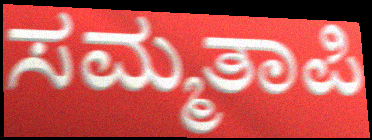
ಸಮ್ಮತಾಪಿ